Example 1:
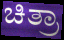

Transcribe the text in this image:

ಚಿತ್ರಾ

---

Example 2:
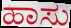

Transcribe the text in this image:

ಹಾಸು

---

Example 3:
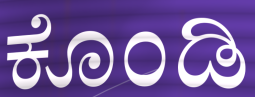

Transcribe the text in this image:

ಕೊಂಡಿ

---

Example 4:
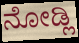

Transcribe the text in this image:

ನೋಡ್ಲಿ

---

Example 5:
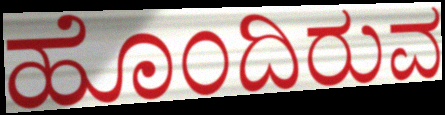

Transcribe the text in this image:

ಹೊಂದಿರುವ